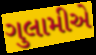
ગુલામીએ